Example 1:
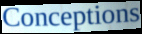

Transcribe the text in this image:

Conceptions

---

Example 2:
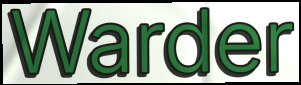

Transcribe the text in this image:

Warder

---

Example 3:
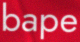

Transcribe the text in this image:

bape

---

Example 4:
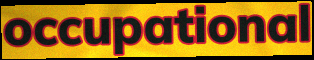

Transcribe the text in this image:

occupational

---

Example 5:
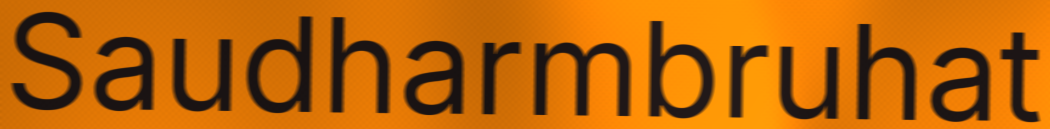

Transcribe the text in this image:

Saudharmbruhat